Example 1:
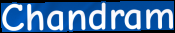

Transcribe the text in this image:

Chandram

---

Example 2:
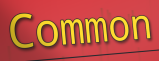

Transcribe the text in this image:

Common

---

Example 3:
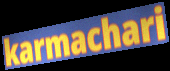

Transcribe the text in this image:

karmachari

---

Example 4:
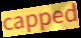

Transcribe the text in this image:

capped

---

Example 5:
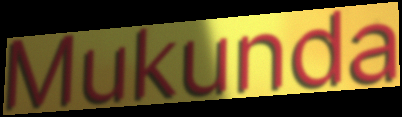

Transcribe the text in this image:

Mukunda